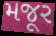
મજૂર